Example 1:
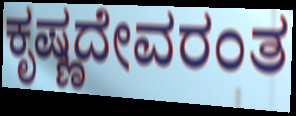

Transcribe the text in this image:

ಕೃಷ್ಣದೇವರಂತ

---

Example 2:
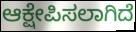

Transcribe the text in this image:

ಆಕ್ಷೇಪಿಸಲಾಗಿದೆ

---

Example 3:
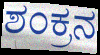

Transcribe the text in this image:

ಶಂಕ್ರನ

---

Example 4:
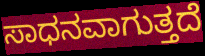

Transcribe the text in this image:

ಸಾಧನವಾಗುತ್ತದೆ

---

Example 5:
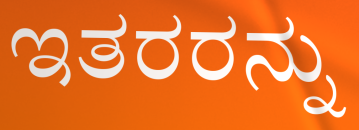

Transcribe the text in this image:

ಇತರರನ್ನು